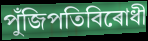
পুঁজিপতিবিৰোধী